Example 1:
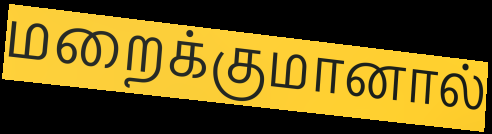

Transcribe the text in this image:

மறைக்குமானால்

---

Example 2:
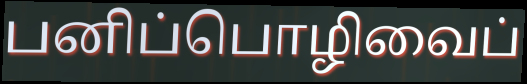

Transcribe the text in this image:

பனிப்பொழிவைப்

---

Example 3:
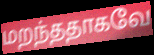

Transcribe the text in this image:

மறந்ததாகவே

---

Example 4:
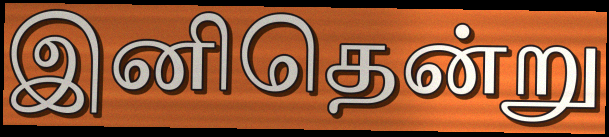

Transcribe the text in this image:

இனிதென்று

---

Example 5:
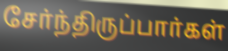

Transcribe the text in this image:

சேர்ந்திருப்பார்கள்